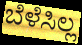
ಬೆಳೆಸಿಲ್ಲ